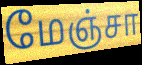
மேஞ்சா